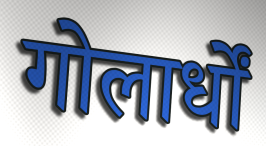
गोलार्धों